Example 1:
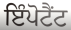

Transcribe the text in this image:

ਇੰਪੋਟੈਂਟ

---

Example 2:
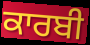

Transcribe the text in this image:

ਕਾਰਬੀ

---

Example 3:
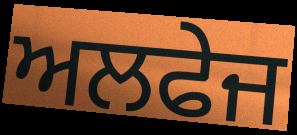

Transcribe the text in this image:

ਅਲਫੇਜ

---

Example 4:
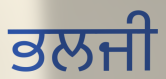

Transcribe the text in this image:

ਭਲਜੀ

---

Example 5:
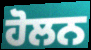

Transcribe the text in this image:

ਹੋਲਨ